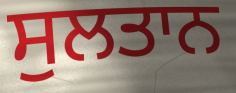
ਸੁਲਤਾਨ